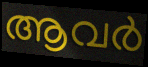
ആവർ